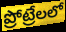
ప్రోట్రేలలో